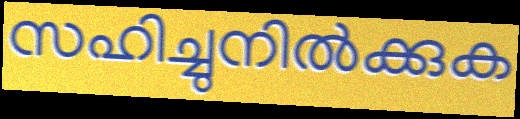
സഹിച്ചുനിൽക്കുക